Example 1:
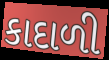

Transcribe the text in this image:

કાદાળી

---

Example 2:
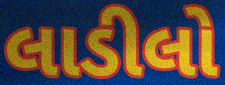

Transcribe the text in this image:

લાડીલો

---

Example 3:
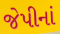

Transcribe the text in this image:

જેપીનાં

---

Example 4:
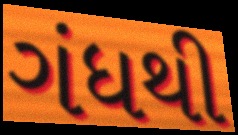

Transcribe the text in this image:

ગંધથી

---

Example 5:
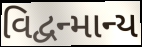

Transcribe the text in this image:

વિદ્વન્માન્ય